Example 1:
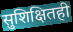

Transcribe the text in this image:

सुशिक्षितही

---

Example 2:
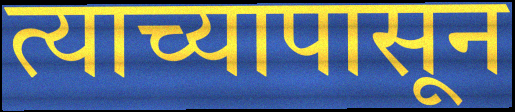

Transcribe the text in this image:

त्याच्यापासून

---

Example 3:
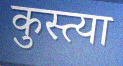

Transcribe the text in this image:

कुस्त्या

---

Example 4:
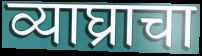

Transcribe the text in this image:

व्याघ्राचा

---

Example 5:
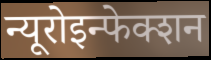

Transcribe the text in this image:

न्यूरोइन्फेक्शन